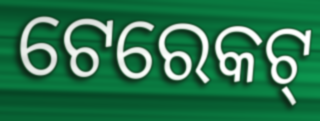
ଟେରେକଟ୍